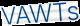
VAWTs